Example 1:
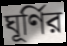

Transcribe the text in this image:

ঘূর্ণির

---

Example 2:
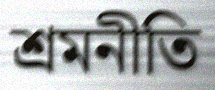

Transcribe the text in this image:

শ্রমনীতি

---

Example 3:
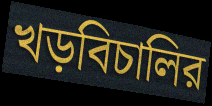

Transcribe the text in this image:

খড়বিচালির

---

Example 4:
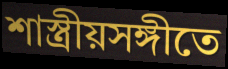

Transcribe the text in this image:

শাস্ত্রীয়সঙ্গীতে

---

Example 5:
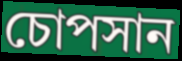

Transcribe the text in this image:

চোপসান